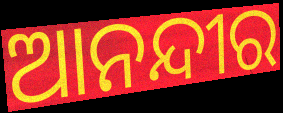
ଆନନ୍ଦୀର